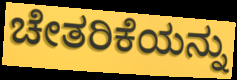
ಚೇತರಿಕೆಯನ್ನು